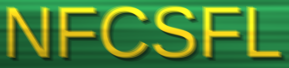
NFCSFL